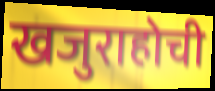
खजुराहोची